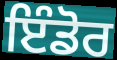
ਇੰਡੋਰ